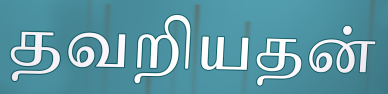
தவறியதன்